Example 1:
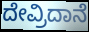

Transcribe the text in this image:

ದೇವ್ರಿದಾನೆ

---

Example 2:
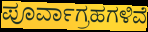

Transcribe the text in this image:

ಪೂರ್ವಾಗ್ರಹಗಳಿವೆ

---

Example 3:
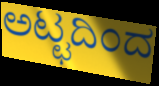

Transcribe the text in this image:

ಅಟ್ಟದಿಂದ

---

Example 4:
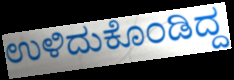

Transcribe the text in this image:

ಉಳಿದುಕೊಂಡಿದ್ದ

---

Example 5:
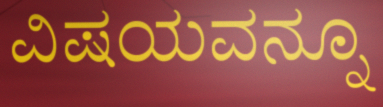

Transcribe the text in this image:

ವಿಷಯವನ್ನೂ